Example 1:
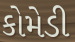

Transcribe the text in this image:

કોમેડી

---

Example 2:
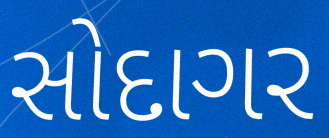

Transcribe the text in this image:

સોદાગર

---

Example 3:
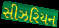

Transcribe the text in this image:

સીઝરિયન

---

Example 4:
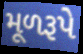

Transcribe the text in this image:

મૂળરૂપે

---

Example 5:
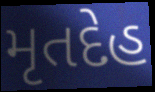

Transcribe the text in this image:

મૃતદેહ